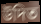
উদিত